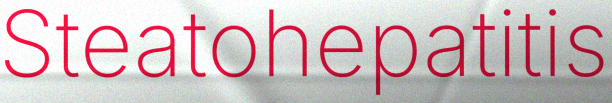
Steatohepatitis